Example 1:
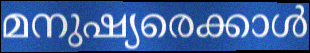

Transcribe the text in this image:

മനുഷ്യരെക്കാൾ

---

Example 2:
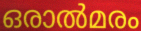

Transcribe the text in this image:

ഒരാൽമരം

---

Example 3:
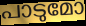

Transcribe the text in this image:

പാടുമോ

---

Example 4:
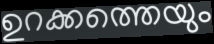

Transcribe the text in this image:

ഉറക്കത്തെയും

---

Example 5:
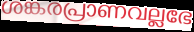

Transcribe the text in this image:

ശങ്കരപ്രാണവല്ലഭേ